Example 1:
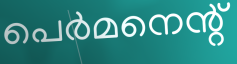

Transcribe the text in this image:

പെർമനെന്റ്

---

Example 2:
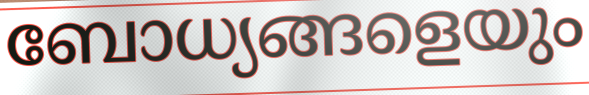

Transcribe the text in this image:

ബോധ്യങ്ങളെയും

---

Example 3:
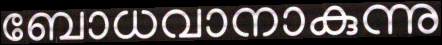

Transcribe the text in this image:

ബോധവാനാകുന്നു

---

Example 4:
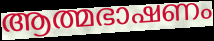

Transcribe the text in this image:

ആത്മഭാഷണം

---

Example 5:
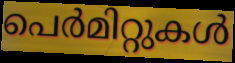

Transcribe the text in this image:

പെർമിറ്റുകൾ